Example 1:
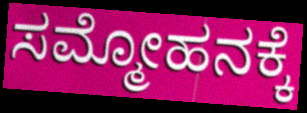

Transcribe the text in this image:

ಸಮ್ಮೋಹನಕ್ಕೆ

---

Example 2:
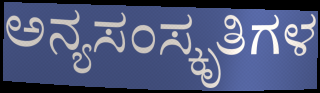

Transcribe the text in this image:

ಅನ್ಯಸಂಸ್ಕೃತಿಗಳ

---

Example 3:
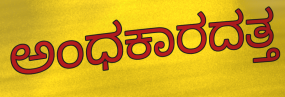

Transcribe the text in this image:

ಅಂಧಕಾರದತ್ತ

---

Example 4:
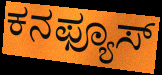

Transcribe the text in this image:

ಕನಫ್ಯೂಸ್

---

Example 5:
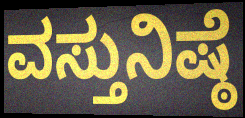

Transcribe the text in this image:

ವಸ್ತುನಿಷ್ಠೆ